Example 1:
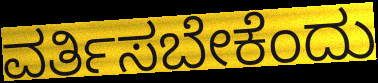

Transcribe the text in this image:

ವರ್ತಿಸಬೇಕೆಂದು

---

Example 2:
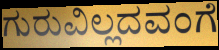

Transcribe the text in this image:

ಗುರುವಿಲ್ಲದವಂಗೆ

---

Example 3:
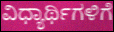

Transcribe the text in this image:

ವಿಧ್ಯಾರ್ಥಿಗಳಿಗೆ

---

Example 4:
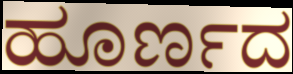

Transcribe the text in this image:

ಹೂರ್ಣದ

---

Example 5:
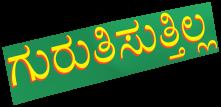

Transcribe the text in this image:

ಗುರುತಿಸುತ್ತಿಲ್ಲ